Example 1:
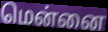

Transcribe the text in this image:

மென்னை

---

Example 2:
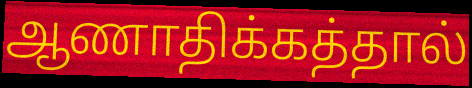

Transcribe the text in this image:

ஆணாதிக்கத்தால்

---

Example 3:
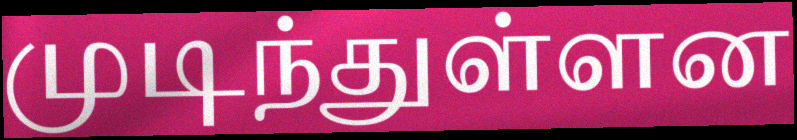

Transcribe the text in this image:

முடிந்துள்ளன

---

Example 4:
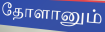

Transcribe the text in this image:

தோளானும்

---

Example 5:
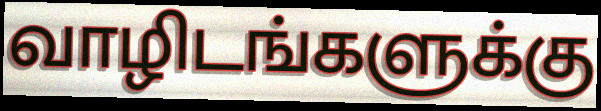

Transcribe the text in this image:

வாழிடங்களுக்கு